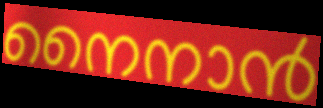
നൈനാൻ